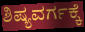
ಶಿಷ್ಯವರ್ಗಕ್ಕೆ